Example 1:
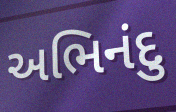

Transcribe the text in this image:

અભિનંદુ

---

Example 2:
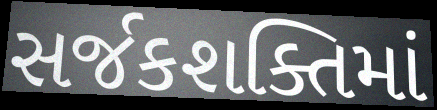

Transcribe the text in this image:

સર્જકશક્તિમાં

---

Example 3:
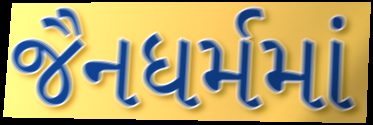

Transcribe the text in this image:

જૈનધર્મમાં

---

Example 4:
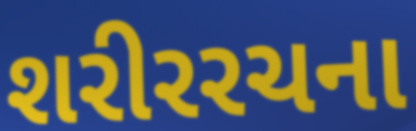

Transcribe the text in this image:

શરીરરચના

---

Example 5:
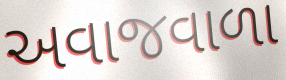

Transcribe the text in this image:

અવાજવાળા